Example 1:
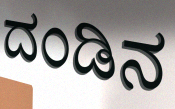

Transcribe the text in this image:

ದಂಡಿನ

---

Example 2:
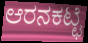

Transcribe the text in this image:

ಆರನಕಟ್ಟೆ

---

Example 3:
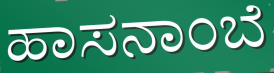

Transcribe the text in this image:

ಹಾಸನಾಂಬೆ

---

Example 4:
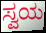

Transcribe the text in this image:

ಸ್ವಯ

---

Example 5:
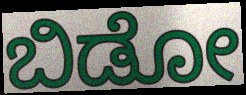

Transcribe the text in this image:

ಬಿಡೋ